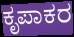
ಕೃಪಾಕರ